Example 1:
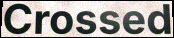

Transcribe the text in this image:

Crossed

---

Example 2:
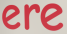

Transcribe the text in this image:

ere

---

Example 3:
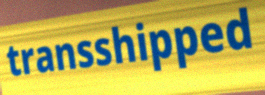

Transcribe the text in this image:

transshipped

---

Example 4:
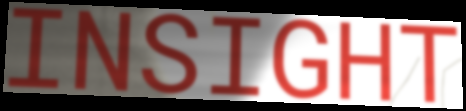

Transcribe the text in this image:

INSIGHT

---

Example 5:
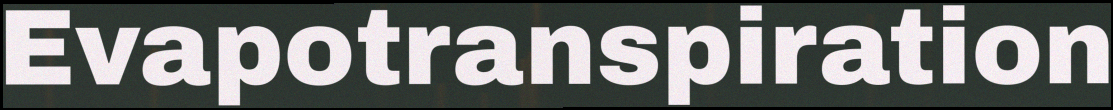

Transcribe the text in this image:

Evapotranspiration